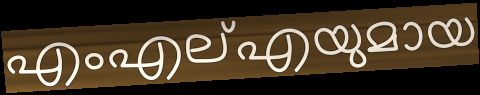
എംഎല്എയുമായ